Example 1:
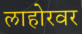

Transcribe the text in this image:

लाहोरवर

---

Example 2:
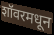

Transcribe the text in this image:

शॉवरमधून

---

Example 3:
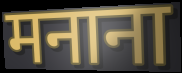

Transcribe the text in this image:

मनाना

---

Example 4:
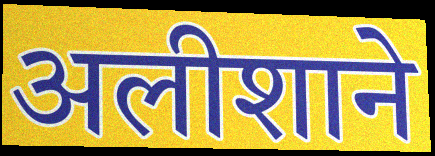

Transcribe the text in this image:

अलीशाने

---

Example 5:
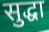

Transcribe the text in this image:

सुद्धा